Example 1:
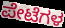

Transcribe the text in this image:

ಪೇಟೆಗಳ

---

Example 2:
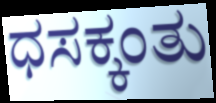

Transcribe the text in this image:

ಧಸಕ್ಕಂತು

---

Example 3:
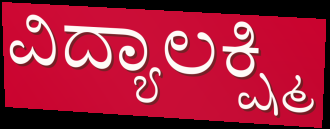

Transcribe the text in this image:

ವಿದ್ಯಾಲಕ್ಷ್ಮಿ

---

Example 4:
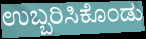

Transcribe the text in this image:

ಉಬ್ಬರಿಸಿಕೊಂಡು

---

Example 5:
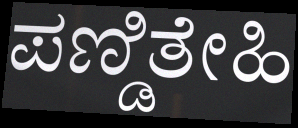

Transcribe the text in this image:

ಪಣ್ಡಿತೇಹಿ